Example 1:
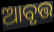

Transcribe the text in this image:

ଆବୃତ୍ତ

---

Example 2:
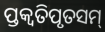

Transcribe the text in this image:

ପ୍ତକ୍ଵତିପୃତସମ୍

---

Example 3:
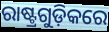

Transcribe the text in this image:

ରାଷ୍ଟ୍ରଗୁଡ଼ିକରେ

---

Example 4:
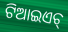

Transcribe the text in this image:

ଟିଆଇଏଚ୍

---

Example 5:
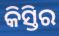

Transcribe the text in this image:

କିସ୍ତିର